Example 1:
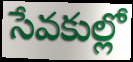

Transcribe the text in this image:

సేవకుల్లో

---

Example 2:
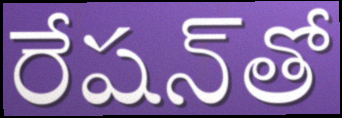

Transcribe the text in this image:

రేషన్‌తో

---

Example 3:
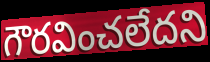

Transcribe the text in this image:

గౌరవించలేదని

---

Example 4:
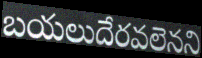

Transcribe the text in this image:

బయలుదేరవలెనని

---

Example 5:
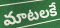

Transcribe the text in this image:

మాటలకే